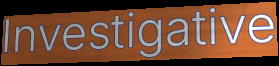
Investigative